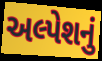
અલ્પેશનું